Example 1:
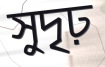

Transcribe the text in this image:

সুদৃঢ়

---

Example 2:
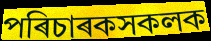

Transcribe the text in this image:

পৰিচাৰকসকলক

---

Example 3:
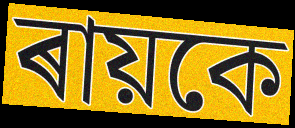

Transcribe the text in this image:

ৰায়কে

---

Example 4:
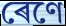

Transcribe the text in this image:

ৰেণে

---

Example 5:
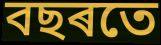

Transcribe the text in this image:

বছৰতে